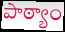
పాఠ్యాం